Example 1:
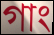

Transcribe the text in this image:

গাং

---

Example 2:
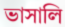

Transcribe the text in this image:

ভাসালি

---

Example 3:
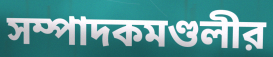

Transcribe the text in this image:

সম্পাদকমণ্ডলীর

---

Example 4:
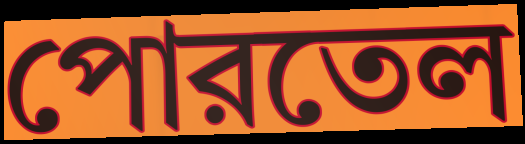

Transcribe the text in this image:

পোরতেল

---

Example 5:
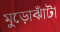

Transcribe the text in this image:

মুড়োঝাঁটা